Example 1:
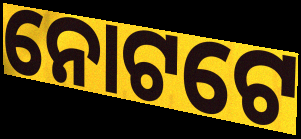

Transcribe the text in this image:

ନୋଟଟେ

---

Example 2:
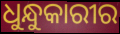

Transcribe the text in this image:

ଧୁନ୍ଧୁକାରୀର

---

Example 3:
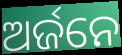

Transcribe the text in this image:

ଅର୍ଜନେ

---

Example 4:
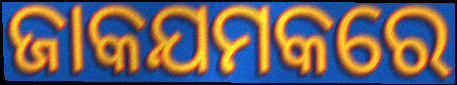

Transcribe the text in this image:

ଜାକଯମକରେ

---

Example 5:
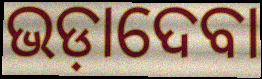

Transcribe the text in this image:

ଭଡ଼ାଦେବା